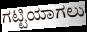
ಗಟ್ಟಿಯಾಗಲು